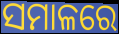
ସମାଳରେ